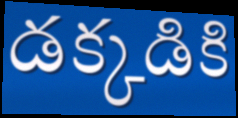
డక్కడికి